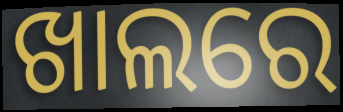
ଖାଲରେ